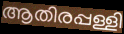
ആതിരപ്പള്ളി